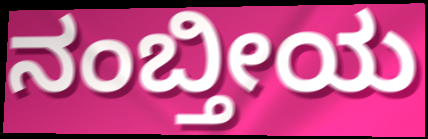
ನಂಬ್ತೀಯ